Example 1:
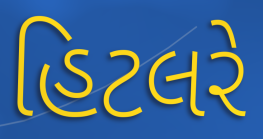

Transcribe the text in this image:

હિટલરે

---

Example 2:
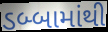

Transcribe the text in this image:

ડબ્બામાંથી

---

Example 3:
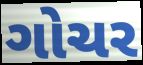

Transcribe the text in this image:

ગોચર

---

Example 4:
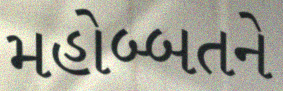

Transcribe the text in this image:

મહોબ્બતને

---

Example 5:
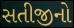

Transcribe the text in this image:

સતીજીનો